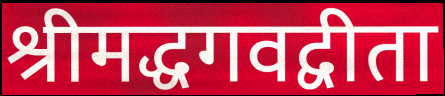
श्रीमद्धगवद्वीता